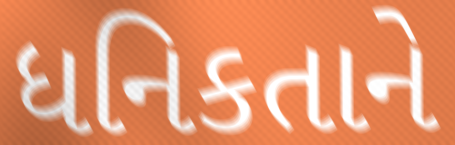
ધનિકતાને